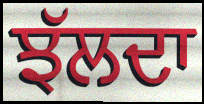
ਝੱਲਦਾ